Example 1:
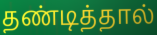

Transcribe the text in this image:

தண்டித்தால்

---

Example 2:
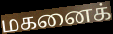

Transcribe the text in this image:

மகனைக்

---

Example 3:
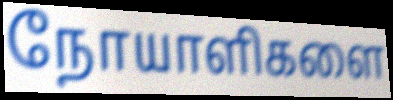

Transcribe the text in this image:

நோயாளிகளை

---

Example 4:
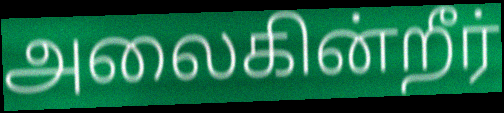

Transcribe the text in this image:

அலைகின்றீர்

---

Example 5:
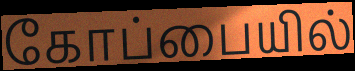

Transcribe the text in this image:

கோப்பையில்